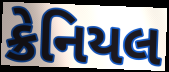
ક્રેનિયલ